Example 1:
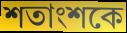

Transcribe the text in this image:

শতাংশকে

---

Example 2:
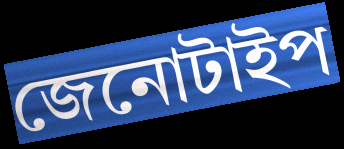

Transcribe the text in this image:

জেনোটাইপ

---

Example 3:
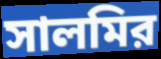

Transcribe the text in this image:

সালমির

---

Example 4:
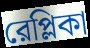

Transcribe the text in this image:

রেপ্লিকা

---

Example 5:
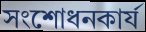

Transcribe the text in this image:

সংশোধনকার্য